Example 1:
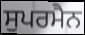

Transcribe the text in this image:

ਸੁਪਰਮੈਨ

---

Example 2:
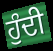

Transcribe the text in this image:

ਹੁੰਦੀ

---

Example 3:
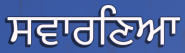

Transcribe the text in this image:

ਸਵਾਰਣਿਆ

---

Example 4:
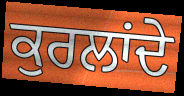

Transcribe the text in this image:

ਕੁਰਲਾਂਦੇ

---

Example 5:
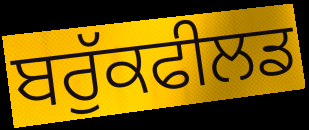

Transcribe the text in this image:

ਬਰੁੱਕਫੀਲਡ